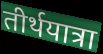
तीर्थयात्रा